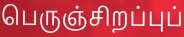
பெருஞ்சிறப்புப்